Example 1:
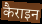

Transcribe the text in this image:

कैराइन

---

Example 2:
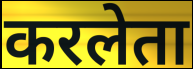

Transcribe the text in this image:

करलेता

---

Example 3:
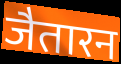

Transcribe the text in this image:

जैतारन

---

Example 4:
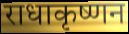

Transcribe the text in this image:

राधाकृष्णन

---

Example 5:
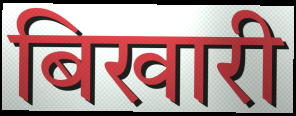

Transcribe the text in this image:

बिखारी